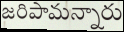
జరిపామన్నారు